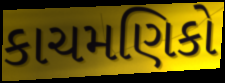
કાચમણિકો